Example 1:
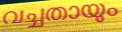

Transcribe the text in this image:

വച്ചതായും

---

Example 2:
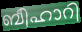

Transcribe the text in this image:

ബീഹാറി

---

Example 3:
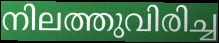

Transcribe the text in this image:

നിലത്തുവിരിച്ച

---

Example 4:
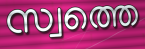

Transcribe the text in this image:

സ്വത്തെ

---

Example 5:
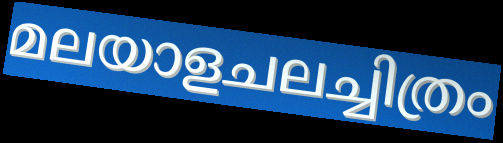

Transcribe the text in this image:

മലയാളചലച്ചിത്രം